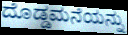
ದೊಡ್ಡಮನೆಯನ್ನು